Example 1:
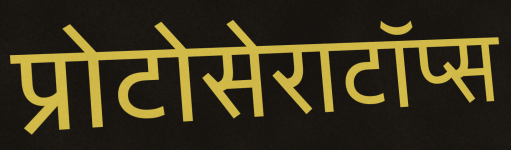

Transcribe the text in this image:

प्रोटोसेराटॉप्स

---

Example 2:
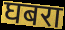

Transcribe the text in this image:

घबरा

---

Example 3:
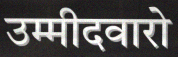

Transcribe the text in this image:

उम्मीदवारो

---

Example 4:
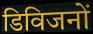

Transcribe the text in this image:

डिविजनों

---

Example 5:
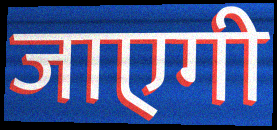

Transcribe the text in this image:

जाएगी